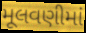
મૂલવણીમાં